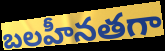
బలహీనతగా